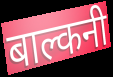
बाल्कनी